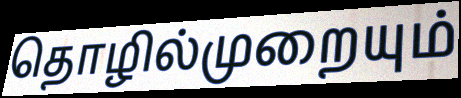
தொழில்முறையும்